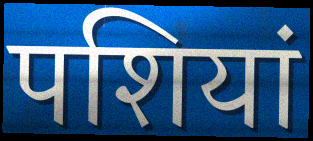
पशियां